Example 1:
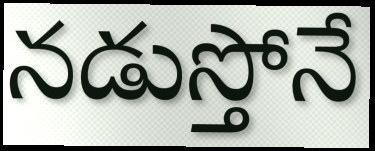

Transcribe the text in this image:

నడుస్తోనే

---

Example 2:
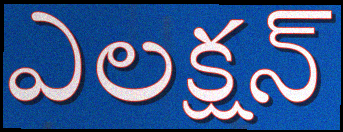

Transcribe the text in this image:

ఎలక్షన్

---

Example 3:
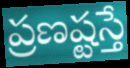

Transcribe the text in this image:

ప్రణష్టస్తే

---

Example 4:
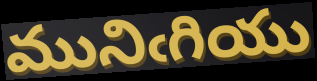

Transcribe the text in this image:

మునిఁగియు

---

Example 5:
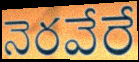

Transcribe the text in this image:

నెరవేరే